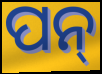
ପନ୍